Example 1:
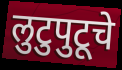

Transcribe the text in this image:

लुटुपुटूचे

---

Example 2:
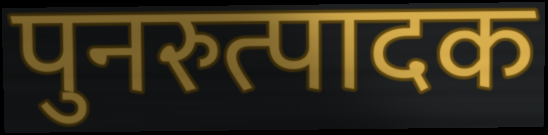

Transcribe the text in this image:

पुनरुत्पादक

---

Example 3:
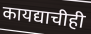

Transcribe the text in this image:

कायद्याचीही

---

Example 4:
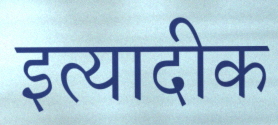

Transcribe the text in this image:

इत्यादीक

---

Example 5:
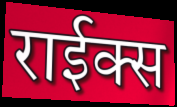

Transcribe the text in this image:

राईक्स